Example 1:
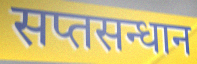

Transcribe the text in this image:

सप्तसन्धान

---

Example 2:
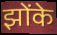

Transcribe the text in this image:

झोंके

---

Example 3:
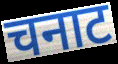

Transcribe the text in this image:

चनाट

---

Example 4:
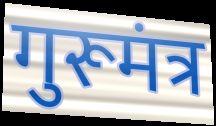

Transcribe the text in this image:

गुरूमंत्र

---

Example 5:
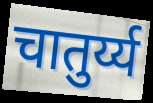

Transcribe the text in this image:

चातुर्य्य